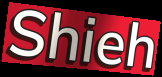
Shieh